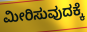
ಮೀರಿಸುವುದಕ್ಕೆ